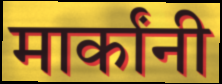
मार्कांनी